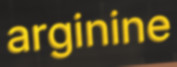
arginine